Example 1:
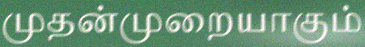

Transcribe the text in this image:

முதன்முறையாகும்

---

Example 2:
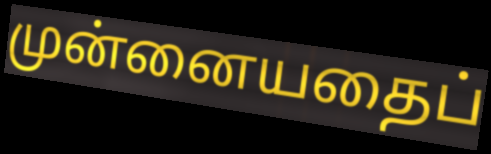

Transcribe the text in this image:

முன்னையதைப்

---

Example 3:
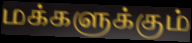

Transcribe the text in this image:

மக்களுக்கும்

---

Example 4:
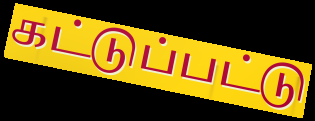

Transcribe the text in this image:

கட்டுப்பட்டு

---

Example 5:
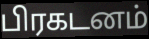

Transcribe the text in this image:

பிரகடனம்